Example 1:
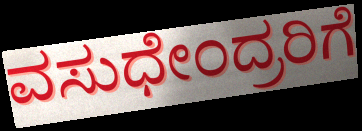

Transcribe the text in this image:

ವಸುಧೇಂದ್ರರಿಗೆ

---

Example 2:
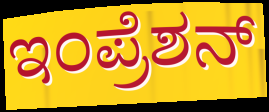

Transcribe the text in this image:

ಇಂಪ್ರೆಶನ್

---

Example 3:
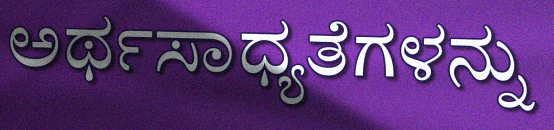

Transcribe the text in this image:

ಅರ್ಥಸಾಧ್ಯತೆಗಳನ್ನು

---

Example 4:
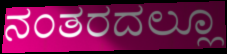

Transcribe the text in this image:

ನಂತರದಲ್ಲೂ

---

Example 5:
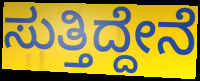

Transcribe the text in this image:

ಸುತ್ತಿದ್ದೇನೆ